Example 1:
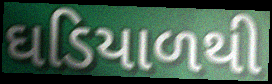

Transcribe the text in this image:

ઘડિયાળથી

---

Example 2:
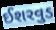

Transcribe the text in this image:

ઈશરવુડ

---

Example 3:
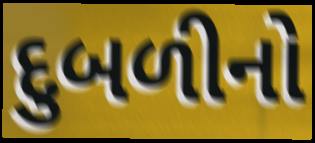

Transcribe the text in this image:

દુબળીનો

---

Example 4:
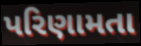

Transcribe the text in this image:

પરિણામતા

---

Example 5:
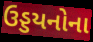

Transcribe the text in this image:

ઉડ્ડયનોના